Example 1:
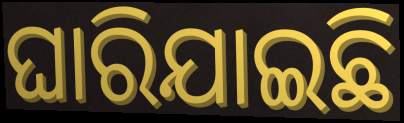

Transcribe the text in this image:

ଘାରିଯାଇଛି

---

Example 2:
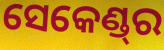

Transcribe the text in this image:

ସେକେଣ୍ଡ୍‌ର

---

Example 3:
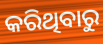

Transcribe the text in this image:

କରିଥିବାରୁ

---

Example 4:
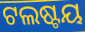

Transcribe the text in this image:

ଟଲଷ୍ଟୟ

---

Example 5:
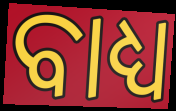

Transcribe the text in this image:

ବାଧ୍ୟ